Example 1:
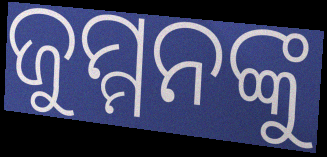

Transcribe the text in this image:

ଜୁମ୍ମନଙ୍କୁ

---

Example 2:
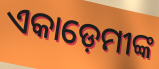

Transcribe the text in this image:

ଏକାଡ଼େମୀଙ୍କ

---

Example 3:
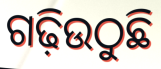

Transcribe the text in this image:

ଗଢ଼ିଉଠୁଛି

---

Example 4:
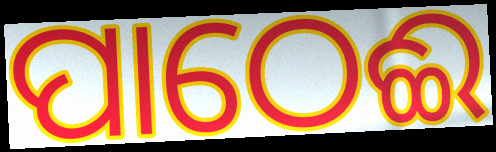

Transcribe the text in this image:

ପାଠେଈ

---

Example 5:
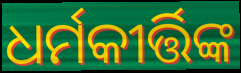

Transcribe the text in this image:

ଧର୍ମକୀର୍ତ୍ତିଙ୍କ